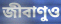
জীবাণুও